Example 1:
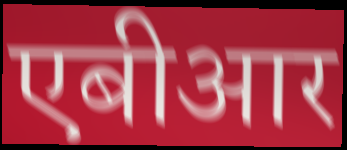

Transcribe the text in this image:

एबीआर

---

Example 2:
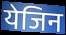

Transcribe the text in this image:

येजिन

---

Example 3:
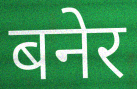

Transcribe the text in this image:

बनेर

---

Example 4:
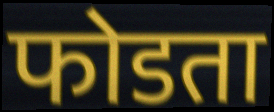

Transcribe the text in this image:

फोडता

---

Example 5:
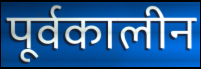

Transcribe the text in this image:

पूर्वकालीन